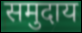
समुदाय